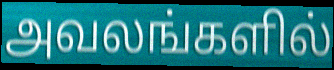
அவலங்களில்